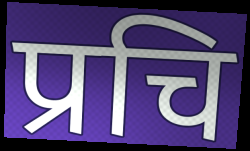
प्रचि